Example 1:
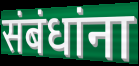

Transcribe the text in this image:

संबंधांना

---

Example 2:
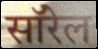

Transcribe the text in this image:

सॉरेल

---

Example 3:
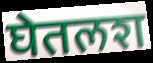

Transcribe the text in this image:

घेतलश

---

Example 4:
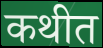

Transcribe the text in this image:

कथीत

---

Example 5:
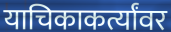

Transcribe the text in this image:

याचिकाकर्त्यांवर